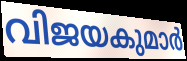
വിജയകുമാർ